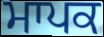
ਮਾਪਕ